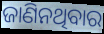
ଜାଣିନଥିବାର